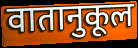
वातानुकूल